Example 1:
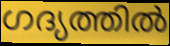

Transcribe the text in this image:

ഗദ്യത്തിൽ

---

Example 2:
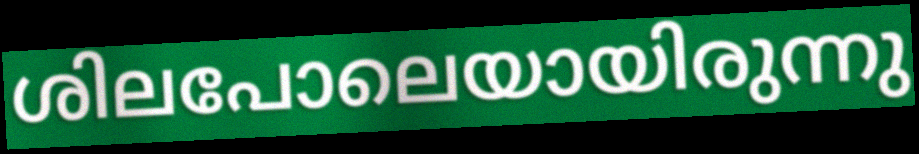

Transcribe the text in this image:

ശിലപോലെയായിരുന്നു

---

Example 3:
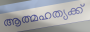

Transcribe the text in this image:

ആത്മഹത്യക്ക്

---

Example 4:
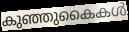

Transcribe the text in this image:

കുഞ്ഞുകൈകൾ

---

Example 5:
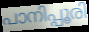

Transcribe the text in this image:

പാനിപ്പൂരി